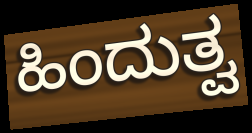
ಹಿಂದುತ್ವ